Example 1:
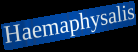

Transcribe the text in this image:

Haemaphysalis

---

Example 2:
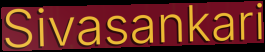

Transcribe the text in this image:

Sivasankari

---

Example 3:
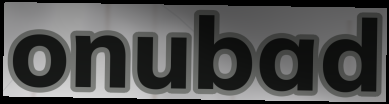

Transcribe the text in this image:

onubad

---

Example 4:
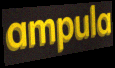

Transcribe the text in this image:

ampula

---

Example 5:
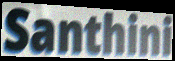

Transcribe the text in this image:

Santhini